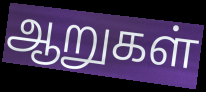
ஆறுகள்